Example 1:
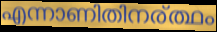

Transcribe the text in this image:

എന്നാണിതിനര്ത്ഥം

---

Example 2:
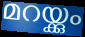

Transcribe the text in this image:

മറയ്ക്കും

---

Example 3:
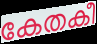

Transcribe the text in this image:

കേതകീ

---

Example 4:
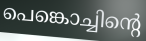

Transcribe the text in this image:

പെങ്കൊച്ചിന്റെ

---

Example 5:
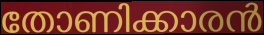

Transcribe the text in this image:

തോണിക്കാരൻ